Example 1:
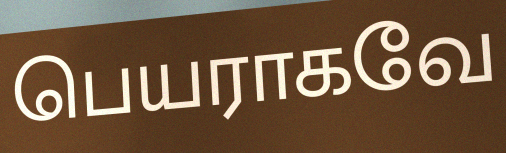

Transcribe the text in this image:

பெயராகவே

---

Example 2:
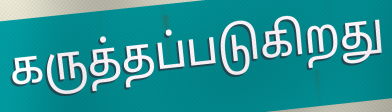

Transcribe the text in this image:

கருத்தப்படுகிறது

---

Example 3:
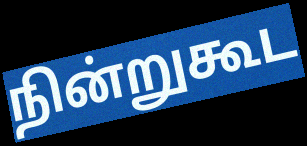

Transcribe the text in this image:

நின்றுகூட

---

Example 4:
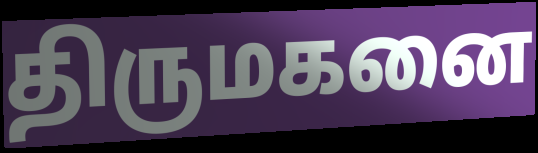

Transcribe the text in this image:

திருமகனை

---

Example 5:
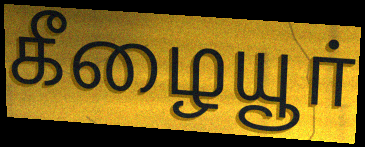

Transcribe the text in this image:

கீழையூர்